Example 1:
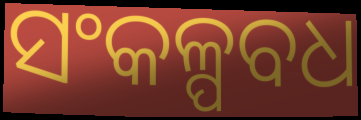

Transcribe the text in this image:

ସଂକଳ୍ପବଧ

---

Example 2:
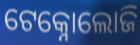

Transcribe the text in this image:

ଟେକ୍ନୋଲୋଜି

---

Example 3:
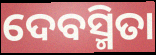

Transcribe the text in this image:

ଦେବସ୍ମିତା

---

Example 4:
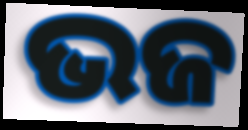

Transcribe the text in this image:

ଭଜ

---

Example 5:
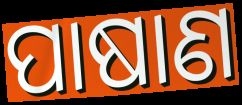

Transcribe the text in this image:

ପାଷାଣ